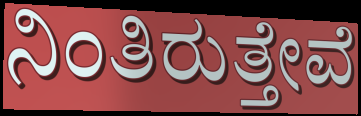
ನಿಂತಿರುತ್ತೇವೆ